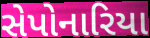
સેપોનારિયા